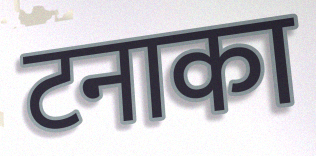
टनाका